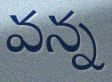
వన్న